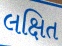
લક્ષિત